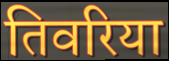
तिवरिया